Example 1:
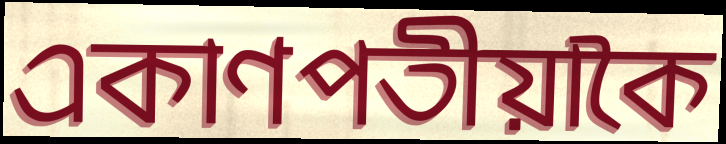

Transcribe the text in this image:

একাণপতীয়াকৈ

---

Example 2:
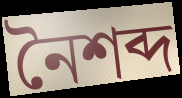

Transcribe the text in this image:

নৈশব্দ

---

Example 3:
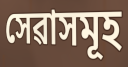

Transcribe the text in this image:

সেৱাসমূহ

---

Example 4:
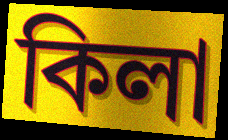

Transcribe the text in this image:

কিলা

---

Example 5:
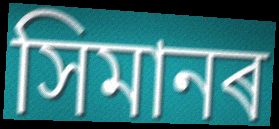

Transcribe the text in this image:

সিমানৰ